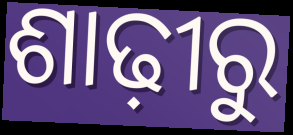
ଶାଢ଼ୀରୁ